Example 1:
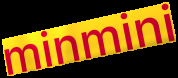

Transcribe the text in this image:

minmini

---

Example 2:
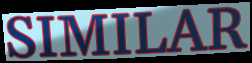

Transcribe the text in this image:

SIMILAR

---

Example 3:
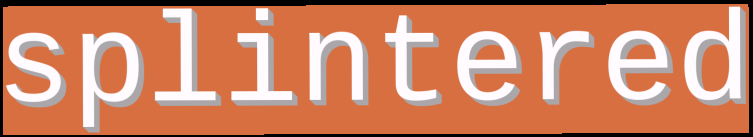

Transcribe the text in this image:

splintered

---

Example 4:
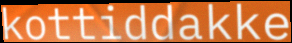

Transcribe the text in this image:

kottiddakke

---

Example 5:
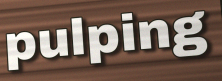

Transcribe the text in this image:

pulping